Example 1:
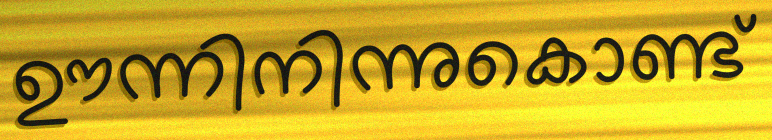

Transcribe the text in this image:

ഊന്നിനിന്നുകൊണ്ട്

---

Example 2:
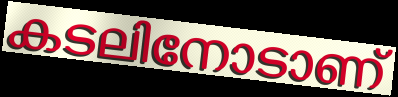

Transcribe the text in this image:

കടലിനോടാണ്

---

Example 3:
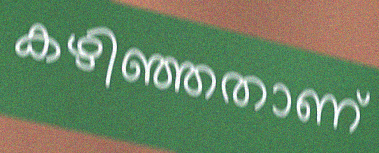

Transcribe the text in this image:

കഴിഞ്ഞതാണ്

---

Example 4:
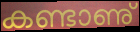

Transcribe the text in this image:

കണ്ടാണു്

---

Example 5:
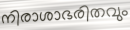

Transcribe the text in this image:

നിരാശാഭരിതവും